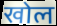
खोल